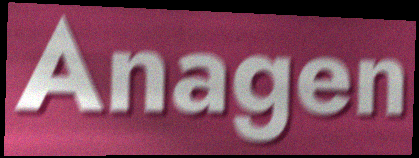
Anagen